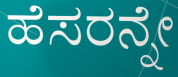
ಹೆಸರನ್ನೇ